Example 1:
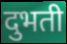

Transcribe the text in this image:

दुभती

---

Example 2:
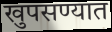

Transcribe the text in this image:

खुपसण्यात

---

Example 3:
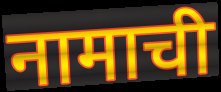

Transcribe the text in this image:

नामाची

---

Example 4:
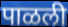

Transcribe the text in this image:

पाळली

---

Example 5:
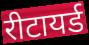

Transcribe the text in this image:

रीटायर्ड